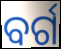
ବର୍ଗ